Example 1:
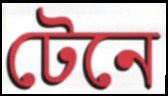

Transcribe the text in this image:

টেনে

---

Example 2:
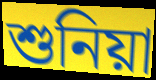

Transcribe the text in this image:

শুনিয়া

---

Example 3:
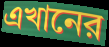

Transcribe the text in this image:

এখানের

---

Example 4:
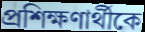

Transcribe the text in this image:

প্রশিক্ষণার্থীকে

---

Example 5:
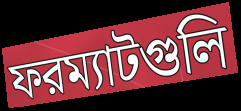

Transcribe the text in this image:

ফরম্যাটগুলি